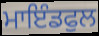
ਮਾਇੰਡਫੁਲ